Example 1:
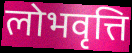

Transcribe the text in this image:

लोभवृत्ति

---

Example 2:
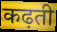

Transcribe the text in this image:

कढ़ती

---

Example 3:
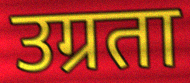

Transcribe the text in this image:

उग्रता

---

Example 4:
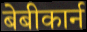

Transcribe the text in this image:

बेबीकार्न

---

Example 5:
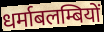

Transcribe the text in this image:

धर्माबलम्बियों